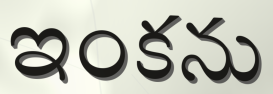
ఇంకను